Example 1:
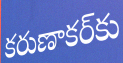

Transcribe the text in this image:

కరుణాకర్‌కు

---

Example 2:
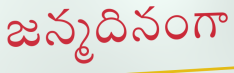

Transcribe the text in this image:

జన్మదినంగా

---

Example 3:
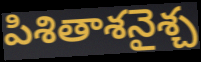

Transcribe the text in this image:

పిశితాశనైశ్చ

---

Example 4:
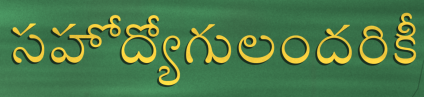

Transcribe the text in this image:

సహోద్యోగులందరికీ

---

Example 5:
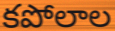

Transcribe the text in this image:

కపోలాల